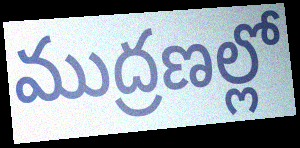
ముద్రణల్లో